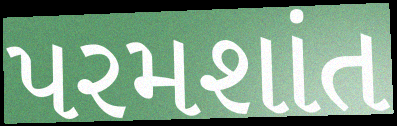
પરમશાંત